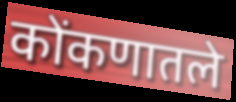
कोंकणातले